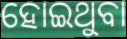
ହୋଇଥୁବା